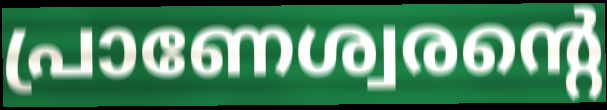
പ്രാണേശ്വരന്റെ